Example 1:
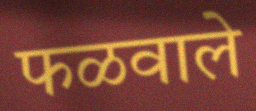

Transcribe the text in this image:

फळवाले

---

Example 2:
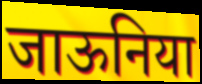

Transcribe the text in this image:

जाऊनिया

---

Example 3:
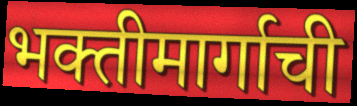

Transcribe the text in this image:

भक्तीमार्गाची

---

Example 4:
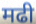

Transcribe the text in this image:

मढी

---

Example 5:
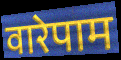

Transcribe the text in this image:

वारेपाम